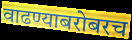
वाढण्याबरोबरच